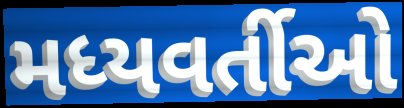
મધ્યવર્તીઓ